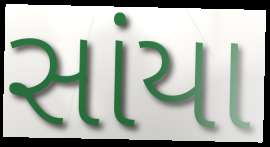
સાંયા